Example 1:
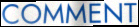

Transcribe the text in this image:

COMMENT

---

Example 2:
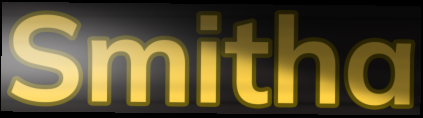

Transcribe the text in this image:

Smitha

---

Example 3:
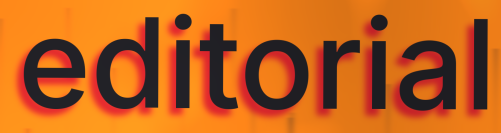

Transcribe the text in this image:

editorial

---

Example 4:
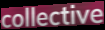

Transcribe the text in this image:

collective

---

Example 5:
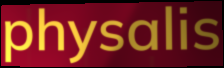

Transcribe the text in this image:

physalis